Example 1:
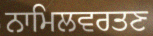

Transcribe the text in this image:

ਨਾਮਿਲਵਰਤਣ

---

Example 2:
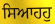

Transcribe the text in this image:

ਸਿਆਹਹੁ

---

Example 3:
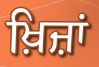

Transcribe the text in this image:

ਖ਼ਿਜ਼ਾਂ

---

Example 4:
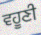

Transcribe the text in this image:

ਵਹੂਣੀ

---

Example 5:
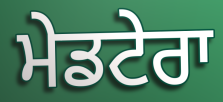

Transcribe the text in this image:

ਮੇਡਟੇਰਾ